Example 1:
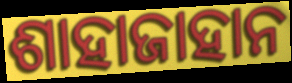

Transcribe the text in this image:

ଶାହାଜାହାନ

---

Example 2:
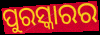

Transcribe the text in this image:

ପୁରସ୍କାରର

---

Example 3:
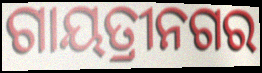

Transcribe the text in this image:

ଗାୟତ୍ରୀନଗର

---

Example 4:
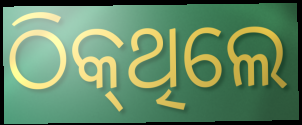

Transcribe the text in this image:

ଠିକ୍‌ଥିଲେ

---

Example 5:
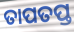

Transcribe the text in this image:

ତାପତପ୍ତ